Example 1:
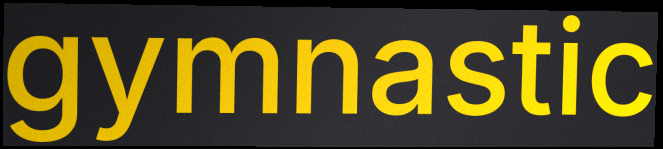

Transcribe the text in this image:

gymnastic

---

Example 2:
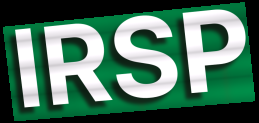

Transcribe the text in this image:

IRSP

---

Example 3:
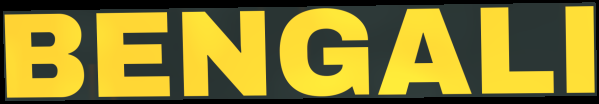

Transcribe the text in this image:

BENGALI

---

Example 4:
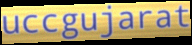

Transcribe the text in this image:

uccgujarat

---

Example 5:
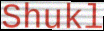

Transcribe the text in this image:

Shukl